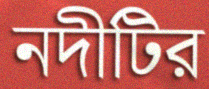
নদীটির